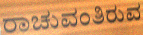
ರಾಚುವಂತಿರುವ